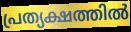
പ്രത്യക്ഷത്തിൽ